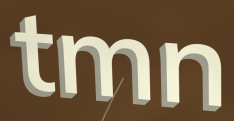
tmn